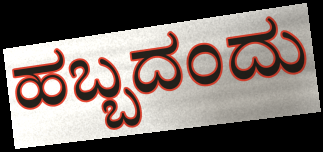
ಹಬ್ಬದಂದು